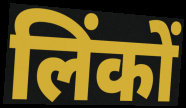
लिंकों